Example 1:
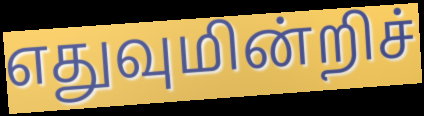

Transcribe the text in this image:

எதுவுமின்றிச்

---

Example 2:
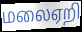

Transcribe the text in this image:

மலைஏறி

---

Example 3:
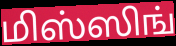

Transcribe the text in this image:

மிஸ்ஸிங்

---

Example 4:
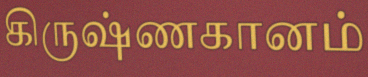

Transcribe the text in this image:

கிருஷ்ணகானம்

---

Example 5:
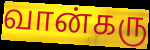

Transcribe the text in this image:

வான்கரு